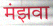
मंझवा